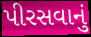
પીરસવાનું